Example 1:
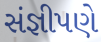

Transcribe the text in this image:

સંજ્ઞીપણે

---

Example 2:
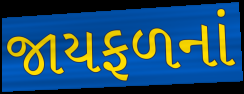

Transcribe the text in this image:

જાયફળનાં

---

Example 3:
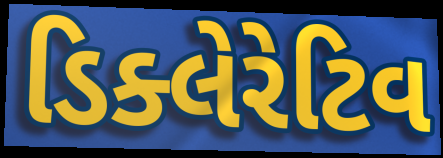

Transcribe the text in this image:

ડિક્લેરેટિવ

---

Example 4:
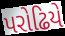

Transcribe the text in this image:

પરોઢિયે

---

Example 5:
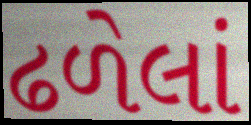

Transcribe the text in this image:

ઢળેલાં